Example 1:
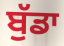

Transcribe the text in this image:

ਬੁੱਡਾ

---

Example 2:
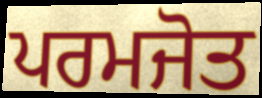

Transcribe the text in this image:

ਪਰਮਜੋਤ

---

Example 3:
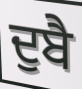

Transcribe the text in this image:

ਦੁਬੈ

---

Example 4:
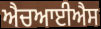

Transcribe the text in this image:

ਐਚਆਈਐਸ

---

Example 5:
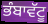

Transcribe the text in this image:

ਭੰਬਾਵੱਟੂ